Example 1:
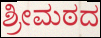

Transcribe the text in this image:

ಶ್ರೀಮಠದ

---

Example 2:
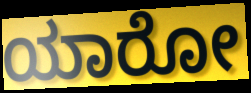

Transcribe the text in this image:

ಯಾರೋ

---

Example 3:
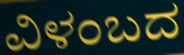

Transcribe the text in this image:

ವಿಳಂಬದ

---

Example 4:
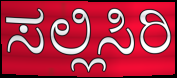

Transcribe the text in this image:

ಸಲ್ಲಿಸಿರಿ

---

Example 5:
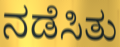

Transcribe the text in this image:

ನಡೆಸಿತು